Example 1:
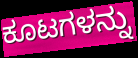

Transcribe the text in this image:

ಕೂಟಗಳನ್ನು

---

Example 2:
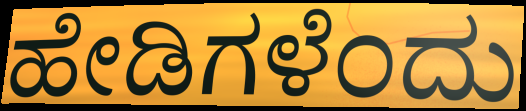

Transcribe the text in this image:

ಹೇಡಿಗಳೆಂದು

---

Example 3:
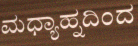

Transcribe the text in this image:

ಮಧ್ಯಾಹ್ನದಿಂದ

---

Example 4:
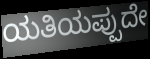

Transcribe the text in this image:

ಯತಿಯಪ್ಪುದೇ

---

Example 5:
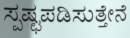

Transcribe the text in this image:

ಸ್ಪಷ್ಟಪಡಿಸುತ್ತೇನೆ